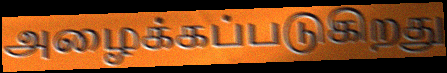
அழைக்கப்படுகிறது